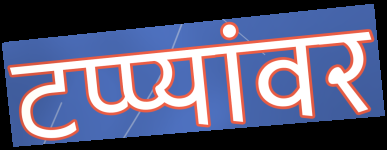
टप्प्यांवर